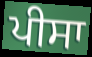
ਪੀਸਾ